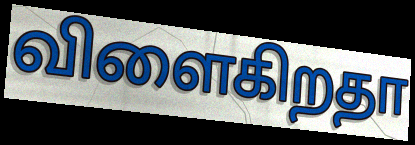
விளைகிறதா